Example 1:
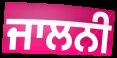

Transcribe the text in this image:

ਜਾਲਨੀ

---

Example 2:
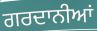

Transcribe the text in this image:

ਗਰਦਾਨੀਆਂ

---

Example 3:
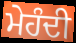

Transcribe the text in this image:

ਮੇਹੰਦੀ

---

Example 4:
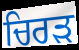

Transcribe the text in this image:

ਚਿਰੜ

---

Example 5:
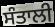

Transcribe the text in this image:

ਸੰਤਾਲੀ